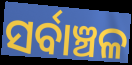
ସର୍ବାଞ୍ଚଳ